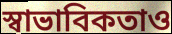
স্বাভাবিকতাও